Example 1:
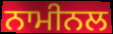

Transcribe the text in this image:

ਨਾਮੀਨਲ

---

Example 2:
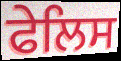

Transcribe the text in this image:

ਫੇਲਿਸ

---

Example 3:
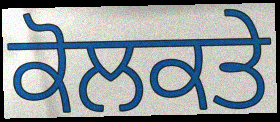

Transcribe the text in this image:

ਕੋਲਕਤੇ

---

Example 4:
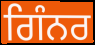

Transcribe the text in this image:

ਗਿੰਨਰ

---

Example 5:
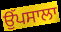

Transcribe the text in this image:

ਉੱਪਸਾਲਾ